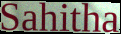
Sahitha